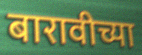
बारावीच्या